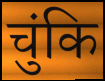
चुंकि